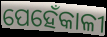
ପେହେଁକାଳୀ